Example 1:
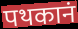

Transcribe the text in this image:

पथकानं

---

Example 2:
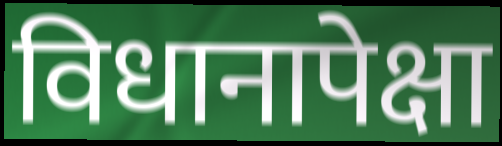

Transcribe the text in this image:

विधानापेक्षा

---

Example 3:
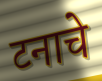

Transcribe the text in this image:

टनाचे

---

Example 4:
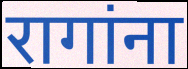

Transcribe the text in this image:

रागांना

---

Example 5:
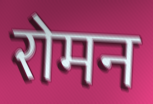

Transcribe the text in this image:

रोमन